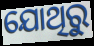
ଯୋଥିରୁ